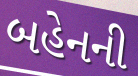
બહેનની